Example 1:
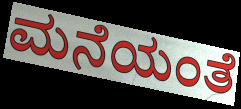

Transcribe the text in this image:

ಮನೆಯಂತೆ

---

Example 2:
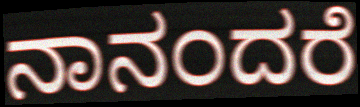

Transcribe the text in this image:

ನಾನಂದರೆ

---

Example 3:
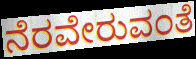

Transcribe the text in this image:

ನೆರವೇರುವಂತೆ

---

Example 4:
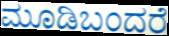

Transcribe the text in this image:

ಮೂಡಿಬಂದರೆ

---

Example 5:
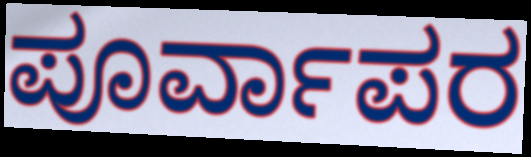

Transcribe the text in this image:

ಪೂರ್ವಾಪರ